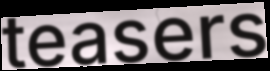
teasers